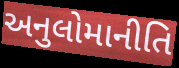
અનુલોમાનીતિ